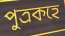
পুত্ৰকহে